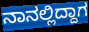
ನಾನಲ್ಲಿದ್ದಾಗ